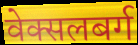
वेक्सलबर्ग